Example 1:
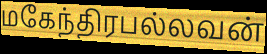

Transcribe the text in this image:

மகேந்திரபல்லவன்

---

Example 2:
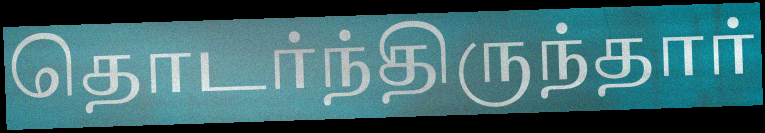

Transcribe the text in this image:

தொடர்ந்திருந்தார்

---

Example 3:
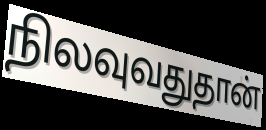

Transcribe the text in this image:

நிலவுவதுதான்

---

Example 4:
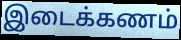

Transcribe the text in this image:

இடைக்கணம்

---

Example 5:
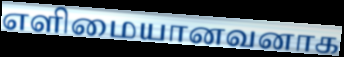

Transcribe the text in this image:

எளிமையானவனாக